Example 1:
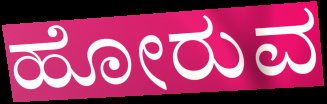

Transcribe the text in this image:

ಹೋರುವ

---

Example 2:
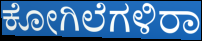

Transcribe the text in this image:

ಕೋಗಿಲೆಗಳಿರಾ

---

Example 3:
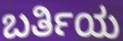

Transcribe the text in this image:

ಬರ್ತಿಯ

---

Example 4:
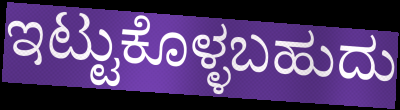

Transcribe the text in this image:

ಇಟ್ಟುಕೊಳ್ಳಬಹುದು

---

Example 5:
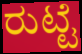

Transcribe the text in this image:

ರುಟ್ಟೆ